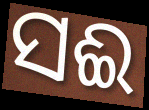
ସଈ